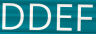
DDEF